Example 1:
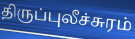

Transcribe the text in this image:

திருப்புலீச்சுரம்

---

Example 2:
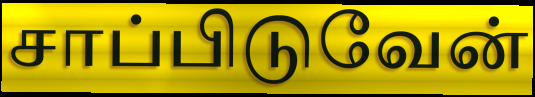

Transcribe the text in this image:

சாப்பிடுவேன்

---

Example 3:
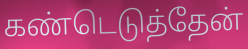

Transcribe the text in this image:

கண்டெடுத்தேன்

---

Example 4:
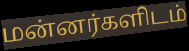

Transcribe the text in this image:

மன்னர்களிடம்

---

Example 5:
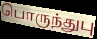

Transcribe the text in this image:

பொருந்துபு